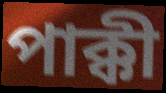
পাক্কী